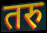
तरु